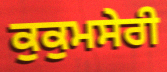
ਕੁਕੁਮਸੇਰੀ